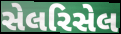
સેલરિસેલ